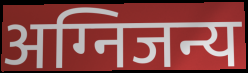
अग्निजन्य